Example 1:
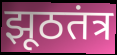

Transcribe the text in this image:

झूठतंत्र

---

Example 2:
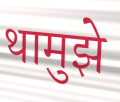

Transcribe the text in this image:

थामुझे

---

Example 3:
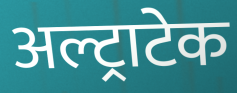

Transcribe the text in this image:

अल्‍ट्राटेक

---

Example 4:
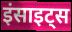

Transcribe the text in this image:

इंसाइट्स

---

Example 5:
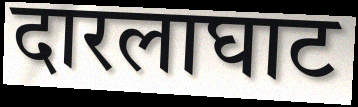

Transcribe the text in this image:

दारलाघाट